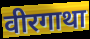
वीरगाथा